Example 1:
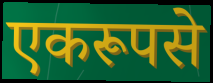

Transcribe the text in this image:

एकरूपसे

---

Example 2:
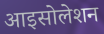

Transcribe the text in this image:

आइसोलेशन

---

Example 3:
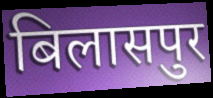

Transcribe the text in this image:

बिलासपुर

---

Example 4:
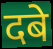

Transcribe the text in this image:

दबे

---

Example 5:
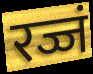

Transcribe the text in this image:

रज्जं